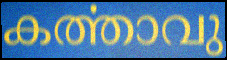
കൎത്താവു